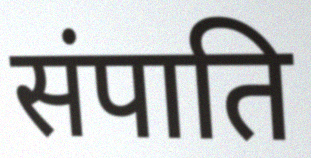
संपाति